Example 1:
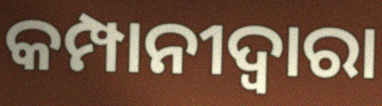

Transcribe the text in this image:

କମ୍ପାନୀଦ୍ୱାରା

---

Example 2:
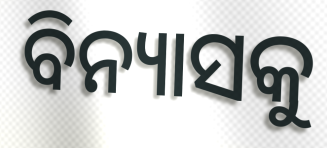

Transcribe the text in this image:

ବିନ୍ୟାସକୁ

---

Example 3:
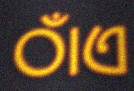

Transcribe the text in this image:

ଠାଁଏ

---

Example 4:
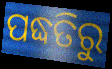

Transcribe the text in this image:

ପଦ୍ଧତିରୁ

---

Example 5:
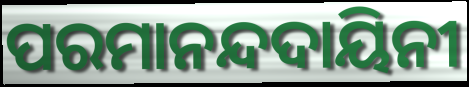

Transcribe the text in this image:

ପରମାନନ୍ଦଦାୟିନୀ